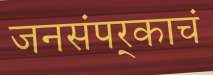
जनसंपर्काचं